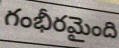
గంభీరమైంది